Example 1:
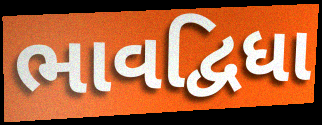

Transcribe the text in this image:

ભાવદ્વિધા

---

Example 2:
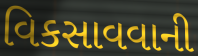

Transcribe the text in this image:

વિકસાવવાની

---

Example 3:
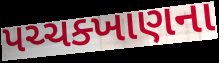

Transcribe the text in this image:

પચ્ચક્ખાણના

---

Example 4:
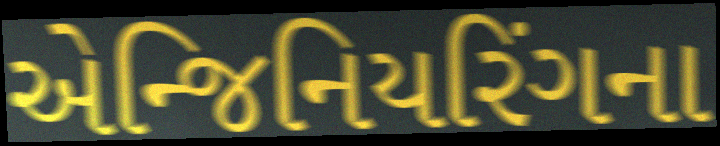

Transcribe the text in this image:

એન્જિનિયરિંગના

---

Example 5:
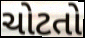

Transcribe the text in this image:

ચોટતો